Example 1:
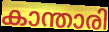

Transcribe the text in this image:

കാന്താരി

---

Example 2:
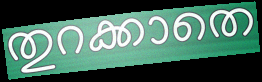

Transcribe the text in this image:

തുറക്കാതെ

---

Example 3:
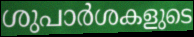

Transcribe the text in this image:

ശുപാർശകളുടെ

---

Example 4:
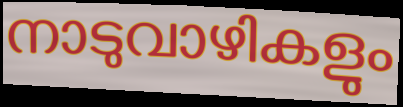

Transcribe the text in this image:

നാടുവാഴികളും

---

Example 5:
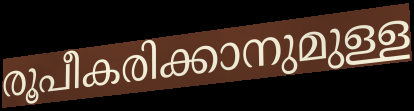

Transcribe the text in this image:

രൂപീകരിക്കാനുമുള്ള